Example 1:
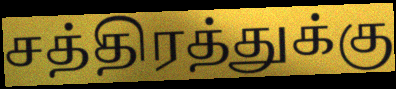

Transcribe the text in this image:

சத்திரத்துக்கு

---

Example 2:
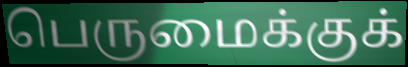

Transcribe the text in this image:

பெருமைக்குக்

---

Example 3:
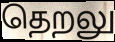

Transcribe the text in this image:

தெறலு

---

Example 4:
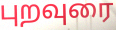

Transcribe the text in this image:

புறவுரை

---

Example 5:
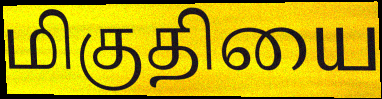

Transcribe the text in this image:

மிகுதியை